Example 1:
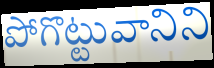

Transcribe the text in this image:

పోగొట్టువానిని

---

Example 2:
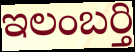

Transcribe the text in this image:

ఇలంబర్తి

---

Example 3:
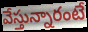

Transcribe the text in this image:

వేస్తున్నారంటే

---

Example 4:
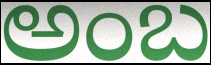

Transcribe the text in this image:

అంబ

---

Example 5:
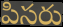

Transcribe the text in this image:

పిసరు